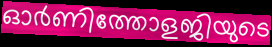
ഓർണിത്തോളജിയുടെ